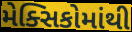
મેક્સિકોમાંથી